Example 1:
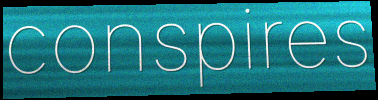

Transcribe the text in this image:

conspires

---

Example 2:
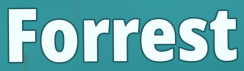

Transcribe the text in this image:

Forrest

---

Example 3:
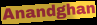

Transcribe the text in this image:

Anandghan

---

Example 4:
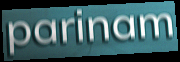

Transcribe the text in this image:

parinam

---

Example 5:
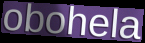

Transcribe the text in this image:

obohela